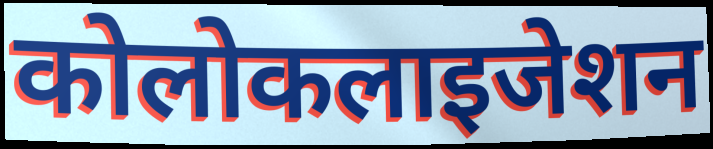
कोलोकलाइजेशन